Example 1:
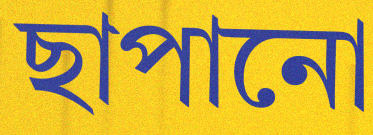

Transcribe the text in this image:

ছাপানো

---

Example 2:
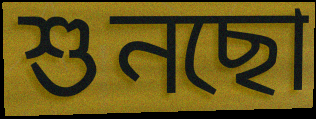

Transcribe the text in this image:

শুনছো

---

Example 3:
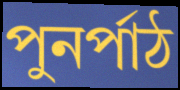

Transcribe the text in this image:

পুনর্পাঠ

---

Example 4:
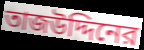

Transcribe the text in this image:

তাজউদ্দিনের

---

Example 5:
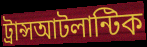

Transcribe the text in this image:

ট্রান্সআটলান্টিক